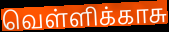
வெள்ளிக்காசு